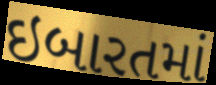
ઇબારતમાં